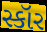
સ્કૉર